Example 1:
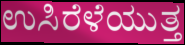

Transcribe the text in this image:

ಉಸಿರೆಳೆಯುತ್ತ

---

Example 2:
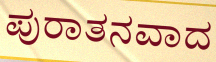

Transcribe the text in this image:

ಪುರಾತನವಾದ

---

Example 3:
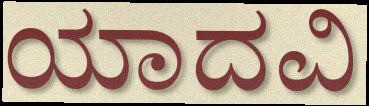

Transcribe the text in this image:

ಯಾದವಿ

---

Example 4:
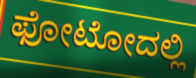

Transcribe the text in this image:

ಫೋಟೋದಲ್ಲಿ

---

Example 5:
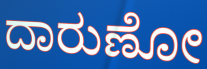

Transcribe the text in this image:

ದಾರುಣೋ